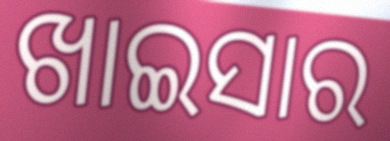
ଖାଇସାର